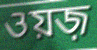
ওয়জ়